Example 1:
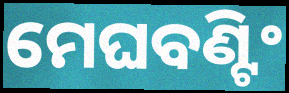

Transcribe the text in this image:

ମେଘବଣ୍ଟିଂ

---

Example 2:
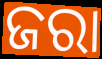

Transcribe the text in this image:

ଜରା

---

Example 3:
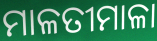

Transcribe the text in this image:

ମାଳତୀମାଳା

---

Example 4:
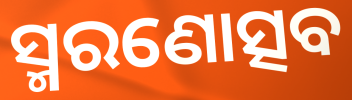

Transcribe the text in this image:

ସ୍ମରଣୋତ୍ସବ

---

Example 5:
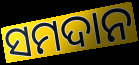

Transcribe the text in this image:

ସମଦାନ